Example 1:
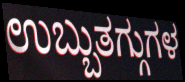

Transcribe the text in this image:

ಉಬ್ಬುತಗ್ಗುಗಳ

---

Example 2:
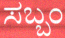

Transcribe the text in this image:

ಸಬ್ಬಂ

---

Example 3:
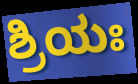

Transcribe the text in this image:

ಶ್ರಿಯಃ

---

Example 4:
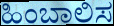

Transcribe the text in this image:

ಹಿಂಬಾಲಿಸ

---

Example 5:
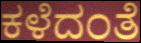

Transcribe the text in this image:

ಕಳೆದಂತೆ